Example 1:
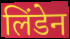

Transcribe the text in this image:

लिंडेन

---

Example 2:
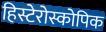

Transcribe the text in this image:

हिस्टेरोस्कोपिक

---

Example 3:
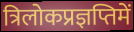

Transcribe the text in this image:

त्रिलोकप्रज्ञप्तिमें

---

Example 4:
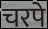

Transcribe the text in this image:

चरपे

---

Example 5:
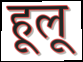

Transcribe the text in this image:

हूलू